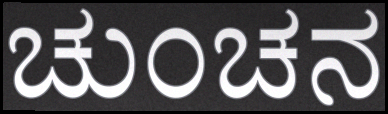
ಚುಂಚನ